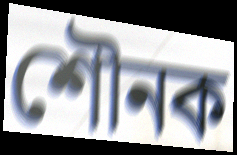
শৌনক